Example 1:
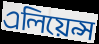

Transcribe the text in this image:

এলিয়েন্স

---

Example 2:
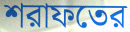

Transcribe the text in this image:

শরাফতের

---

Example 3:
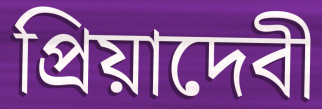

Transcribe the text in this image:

প্রিয়াদেবী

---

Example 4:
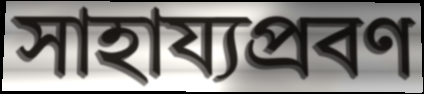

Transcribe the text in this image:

সাহায্যপ্রবণ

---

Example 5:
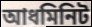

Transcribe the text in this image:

আধমিনিট